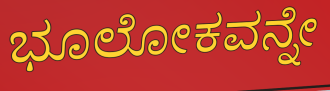
ಭೂಲೋಕವನ್ನೇ